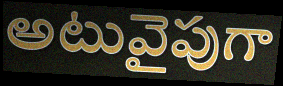
అటువైపుగా